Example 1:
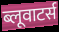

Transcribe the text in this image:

ब्लूवाटर्स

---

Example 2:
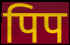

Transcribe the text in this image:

पिप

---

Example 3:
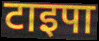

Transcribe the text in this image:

टाइपा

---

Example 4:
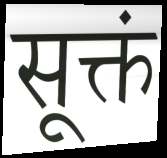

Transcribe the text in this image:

सूक्तं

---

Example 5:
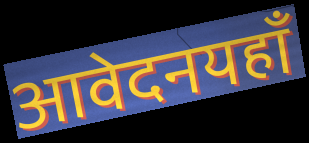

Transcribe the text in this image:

आवेदनयहाँ